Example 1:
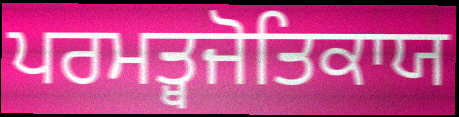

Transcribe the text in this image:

ਪਰਮਤ੍ਥਜੋਤਿਕਾਯ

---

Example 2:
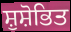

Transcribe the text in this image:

ਸ਼ੁਸ਼ੋਭਿਤ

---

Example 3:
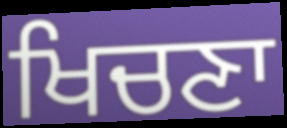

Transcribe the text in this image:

ਖਿਚਣਾ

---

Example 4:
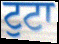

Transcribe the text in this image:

ਟੁਟਾ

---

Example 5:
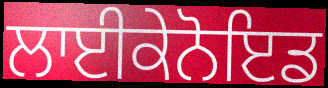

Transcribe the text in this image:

ਲਾਈਕੇਨੋਇਡ